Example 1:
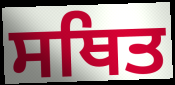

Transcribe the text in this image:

ਸਥਿਤ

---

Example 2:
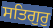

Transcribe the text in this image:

ਸਤਿਗੁਰੁ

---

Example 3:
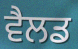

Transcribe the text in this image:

ਵੈਲਡ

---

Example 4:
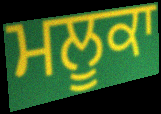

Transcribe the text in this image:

ਮਲੂਕਾ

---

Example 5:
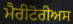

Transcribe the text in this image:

ਮੈਰੀਟੋਰੀਅਸ